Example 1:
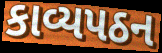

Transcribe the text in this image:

કાવ્યપઠન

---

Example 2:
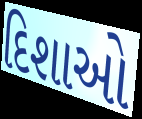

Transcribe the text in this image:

દિશાઓ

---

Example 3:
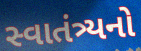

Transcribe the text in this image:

સ્વાતંત્ર્યનો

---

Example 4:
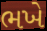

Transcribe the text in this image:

ભખે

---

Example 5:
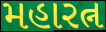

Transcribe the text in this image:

મહારત્ન